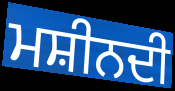
ਮਸ਼ੀਨਦੀ